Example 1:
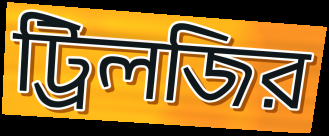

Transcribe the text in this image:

ট্রিলজির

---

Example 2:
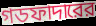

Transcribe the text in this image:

গডফাদারের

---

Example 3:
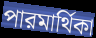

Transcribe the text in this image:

পারমার্থিকা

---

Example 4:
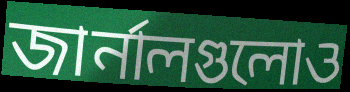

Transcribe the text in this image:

জার্নালগুলোও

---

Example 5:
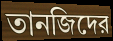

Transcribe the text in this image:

তানজিদের